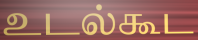
உடல்கூட